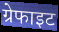
ग्रेफाइट